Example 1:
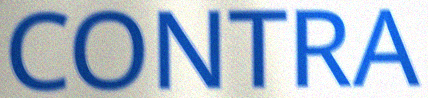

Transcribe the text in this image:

CONTRA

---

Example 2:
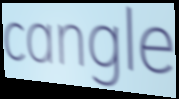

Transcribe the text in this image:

cangle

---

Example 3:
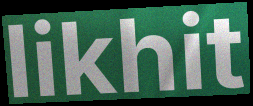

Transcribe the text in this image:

likhit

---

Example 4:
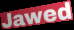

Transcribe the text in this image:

Jawed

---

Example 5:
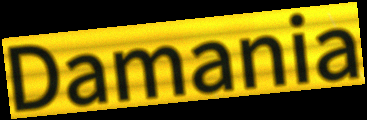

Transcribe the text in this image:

Damania